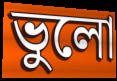
ভুলো